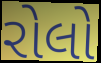
રોલો